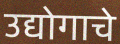
उद्योगाचे